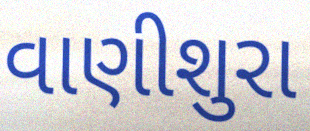
વાણીશુરા